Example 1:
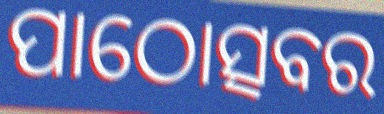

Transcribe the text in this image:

ପାଠୋତ୍ସବର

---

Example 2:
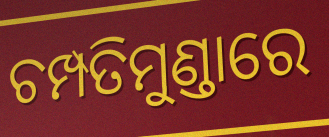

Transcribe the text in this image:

ଚମ୍ପତିମୁଣ୍ଡାରେ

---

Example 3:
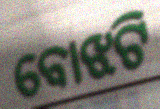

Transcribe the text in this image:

ବୋଝଟି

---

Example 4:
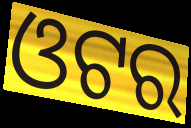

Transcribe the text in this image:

ଓଟର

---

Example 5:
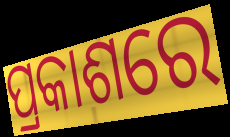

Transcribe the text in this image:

ପ୍ରକାଶରେ